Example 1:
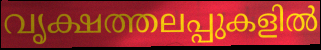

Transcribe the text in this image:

വൃക്ഷത്തലപ്പുകളിൽ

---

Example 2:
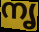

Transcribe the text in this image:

നൃ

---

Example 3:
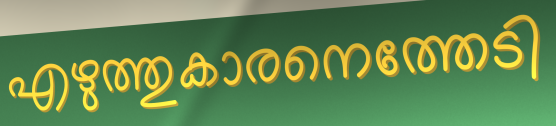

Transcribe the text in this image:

എഴുത്തുകാരനെത്തേടി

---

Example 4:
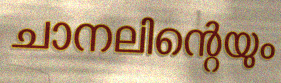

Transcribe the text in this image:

ചാനലിന്റെയും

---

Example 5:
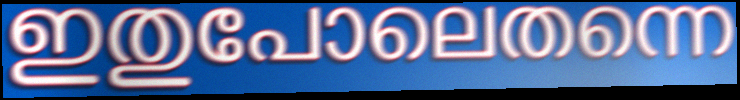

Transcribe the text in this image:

ഇതുപോലെതന്നെ